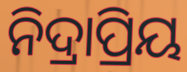
ନିଦ୍ରାପ୍ରିୟ